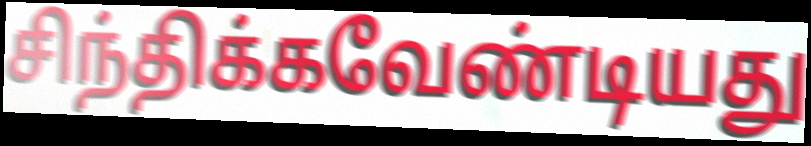
சிந்திக்கவேண்டியது